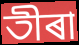
তীৰা